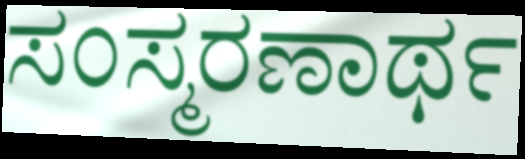
ಸಂಸ್ಮರಣಾರ್ಥ